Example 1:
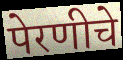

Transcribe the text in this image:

पेरणीचे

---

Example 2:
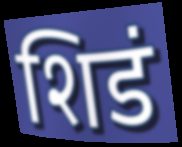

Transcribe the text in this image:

शिडं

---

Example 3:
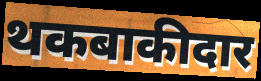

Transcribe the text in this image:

थकबाकीदार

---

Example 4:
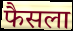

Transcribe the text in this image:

फैसला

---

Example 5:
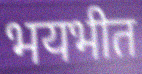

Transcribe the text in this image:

भयभीत